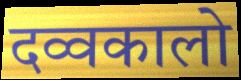
दव्वकालो